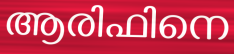
ആരിഫിനെ